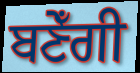
ਬਣੇਁਗੀ